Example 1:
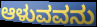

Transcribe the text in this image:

ಆಳುವವನು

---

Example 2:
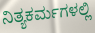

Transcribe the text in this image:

ನಿತ್ಯಕರ್ಮಗಳಲ್ಲಿ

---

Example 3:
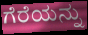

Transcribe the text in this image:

ಗೆರೆಯನ್ನು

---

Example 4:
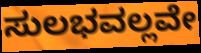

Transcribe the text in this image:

ಸುಲಭವಲ್ಲವೇ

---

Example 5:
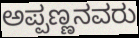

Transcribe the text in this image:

ಅಪ್ಪಣ್ಣನವರು